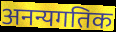
अनन्यगतिक